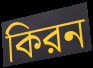
কিরন